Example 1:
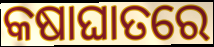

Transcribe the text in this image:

କଷାଘାତରେ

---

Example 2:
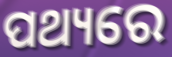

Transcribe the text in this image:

ପଥ୍ୟରେ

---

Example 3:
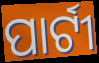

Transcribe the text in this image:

ପାର୍ଟୀ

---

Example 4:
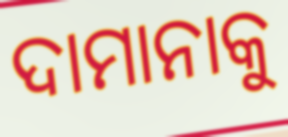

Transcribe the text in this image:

ଦାମାନାକୁ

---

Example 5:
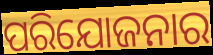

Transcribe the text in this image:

ପରିଯୋଜନାର